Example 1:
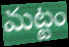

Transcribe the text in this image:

మట్టం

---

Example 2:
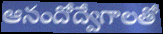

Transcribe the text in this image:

ఆనందోద్వేగాలతో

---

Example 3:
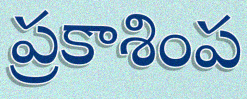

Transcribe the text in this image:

ప్రకాశింప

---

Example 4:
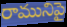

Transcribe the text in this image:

రామునిపై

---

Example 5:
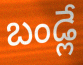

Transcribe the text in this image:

బండ్లే